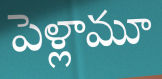
పెళ్లామూ